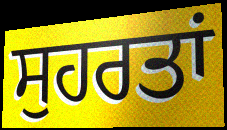
ਸੁਹਰਤਾਂ